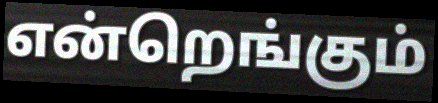
என்றெங்கும்